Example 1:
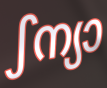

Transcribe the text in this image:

ഽന്യാ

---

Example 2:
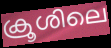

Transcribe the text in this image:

ക്രൂശിലെ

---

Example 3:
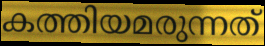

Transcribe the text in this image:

കത്തിയമരുന്നത്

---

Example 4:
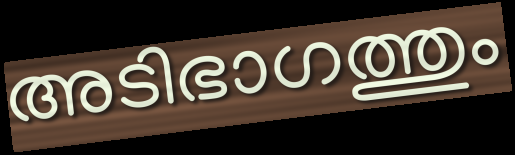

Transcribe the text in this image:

അടിഭാഗത്തും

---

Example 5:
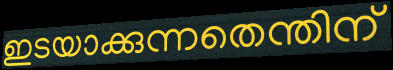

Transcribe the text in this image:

ഇടയാക്കുന്നതെന്തിന്